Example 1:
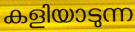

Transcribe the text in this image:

കളിയാടുന്ന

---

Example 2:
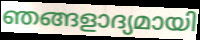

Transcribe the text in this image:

ഞങ്ങളാദ്യമായി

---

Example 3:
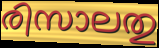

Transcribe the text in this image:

രിസാലതു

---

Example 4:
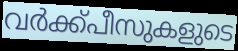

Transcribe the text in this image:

വർക്ക്പീസുകളുടെ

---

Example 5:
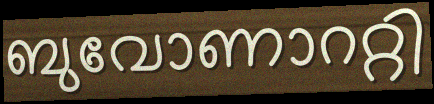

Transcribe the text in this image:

ബുവോണാററ്റി